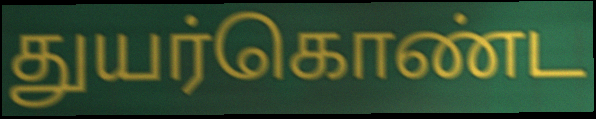
துயர்கொண்ட